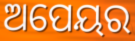
ଅପେୟର